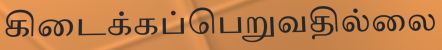
கிடைக்கப்பெறுவதில்லை